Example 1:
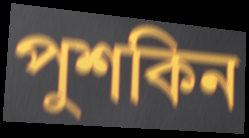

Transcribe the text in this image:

পুশকিন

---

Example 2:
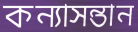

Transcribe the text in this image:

কন্যাসন্তান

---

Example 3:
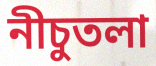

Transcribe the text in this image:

নীচুতলা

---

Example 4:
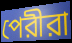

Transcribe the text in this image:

পেরীরা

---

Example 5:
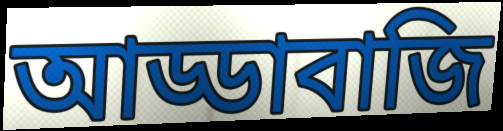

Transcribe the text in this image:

আড্ডাবাজি